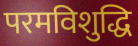
परमविशुद्धि